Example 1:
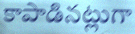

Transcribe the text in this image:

కాపాడినట్లుగా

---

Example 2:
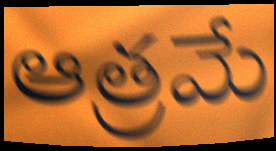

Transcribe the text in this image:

ఆత్రమే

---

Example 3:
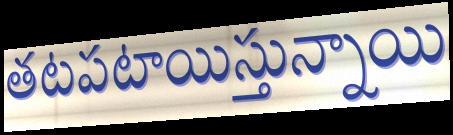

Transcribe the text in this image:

తటపటాయిస్తున్నాయి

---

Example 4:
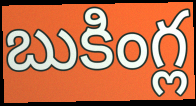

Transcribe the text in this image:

బుకింగ్ల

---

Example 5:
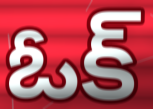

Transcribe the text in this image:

ఓక్